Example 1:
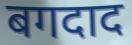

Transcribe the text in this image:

बगदाद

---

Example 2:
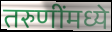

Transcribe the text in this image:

तरुणींमध्ये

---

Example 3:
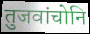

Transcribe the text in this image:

तुजवांचोनि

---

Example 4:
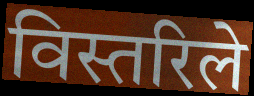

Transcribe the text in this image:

विस्तरिले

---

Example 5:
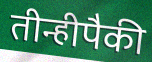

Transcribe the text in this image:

तीन्हीपैकी